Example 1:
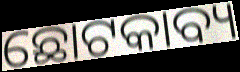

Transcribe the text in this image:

ଛୋଟକାବ୍ୟ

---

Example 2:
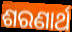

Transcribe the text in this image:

ଶରଣାର୍ଥ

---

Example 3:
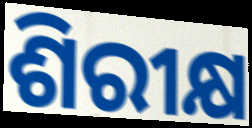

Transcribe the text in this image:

ଶିରୀକ୍ଷ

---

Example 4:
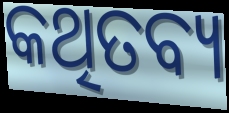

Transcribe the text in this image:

କଥିତବ୍ୟ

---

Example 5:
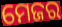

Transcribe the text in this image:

ମେଜର